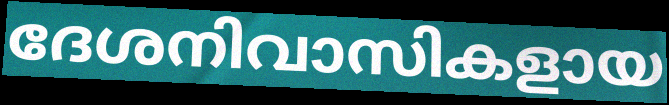
ദേശനിവാസികളായ